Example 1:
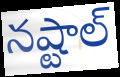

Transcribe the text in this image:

నష్టాల్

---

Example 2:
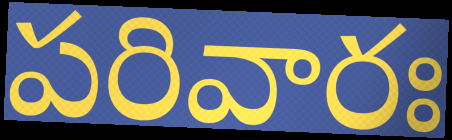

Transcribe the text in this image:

పరివారః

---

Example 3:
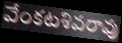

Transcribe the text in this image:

వేంకటశివరావు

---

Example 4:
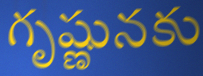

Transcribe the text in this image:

గృష్ణునకు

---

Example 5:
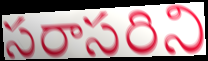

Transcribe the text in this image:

సరాసరిని